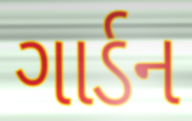
ગાર્ડન